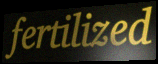
fertilized